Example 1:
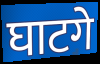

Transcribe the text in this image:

घाटगे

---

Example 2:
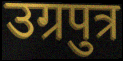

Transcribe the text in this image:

उग्रपुत्र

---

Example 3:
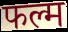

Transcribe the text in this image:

फल्म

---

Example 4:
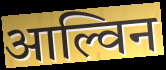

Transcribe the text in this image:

आल्विन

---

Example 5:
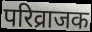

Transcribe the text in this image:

परिव्राजक